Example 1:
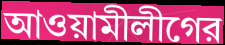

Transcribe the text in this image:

আওয়ামীলীগের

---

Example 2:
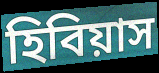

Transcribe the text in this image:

হিবিয়াস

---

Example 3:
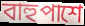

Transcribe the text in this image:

বাহুপাশে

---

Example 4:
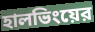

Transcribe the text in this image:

হালভিংয়ের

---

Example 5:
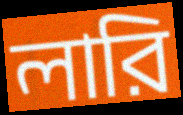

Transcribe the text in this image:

লারি